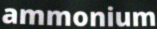
ammonium